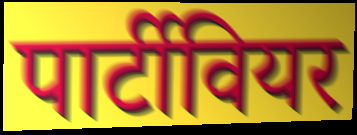
पार्टीवियर